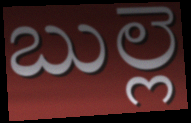
బుల్లె